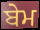
ਬੇਮ